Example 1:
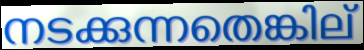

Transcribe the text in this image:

നടക്കുന്നതെങ്കില്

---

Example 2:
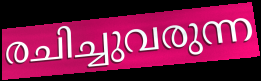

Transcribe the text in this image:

രചിച്ചുവരുന്ന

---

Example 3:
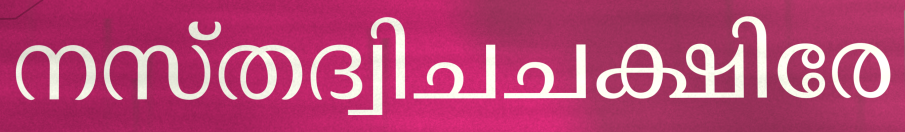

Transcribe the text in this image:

നസ്തദ്വിചചക്ഷിരേ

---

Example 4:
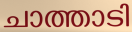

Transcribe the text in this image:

ചാത്താടി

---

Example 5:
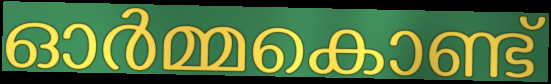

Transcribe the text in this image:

ഓർമ്മകൊണ്ട്